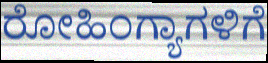
ರೋಹಿಂಗ್ಯಾಗಳಿಗೆ